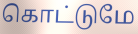
கொட்டுமே